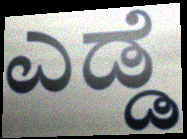
ಎಡ್ಡೆ